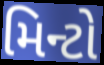
મિન્ટો